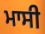
ਮਾਸੀ